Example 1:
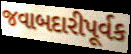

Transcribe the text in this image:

જવાબદારીપૂર્વક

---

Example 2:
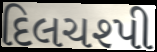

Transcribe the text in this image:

દિલચશ્પી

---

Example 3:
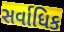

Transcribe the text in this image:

સર્વાધિક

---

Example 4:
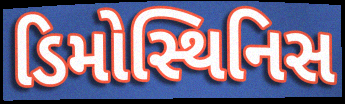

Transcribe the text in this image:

ડિમોસ્થિનિસ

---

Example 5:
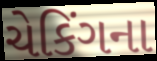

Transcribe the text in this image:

ચેકિંગના